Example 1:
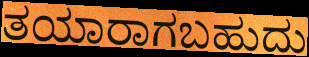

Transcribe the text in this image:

ತಯಾರಾಗಬಹುದು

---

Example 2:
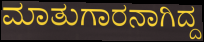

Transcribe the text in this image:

ಮಾತುಗಾರನಾಗಿದ್ದ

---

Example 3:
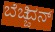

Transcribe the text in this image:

ಬೆಚ್ಚಿದನ್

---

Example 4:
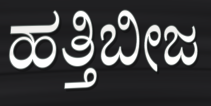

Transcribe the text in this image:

ಹತ್ತಿಬೀಜ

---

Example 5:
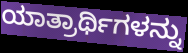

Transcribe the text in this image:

ಯಾತ್ರಾರ್ಥಿಗಳನ್ನು